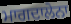
ਮਾਗਦਾਲੇਨਾ